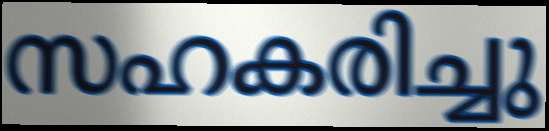
സഹകരിച്ചു